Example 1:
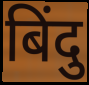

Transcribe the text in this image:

बिंदु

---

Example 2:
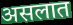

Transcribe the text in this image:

असलात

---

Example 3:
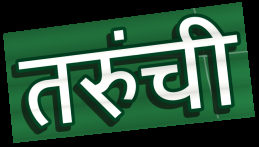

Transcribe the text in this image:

तरुंची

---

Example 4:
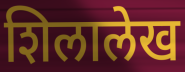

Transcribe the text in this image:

शिलालेख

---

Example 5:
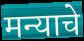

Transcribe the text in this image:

मन्याचे